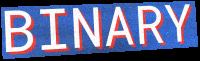
BINARY